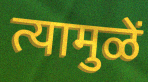
त्यामुळें